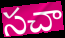
సచా